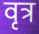
वृत्र